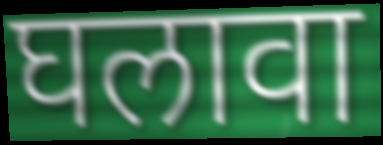
घलावा